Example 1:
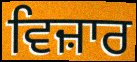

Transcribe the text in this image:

ਵਿਜ਼ਾਰ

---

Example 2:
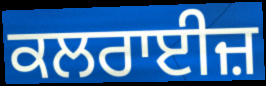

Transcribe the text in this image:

ਕਲਰਾਈਜ਼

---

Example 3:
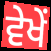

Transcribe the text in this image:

ਵੇਖੇਂ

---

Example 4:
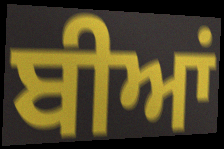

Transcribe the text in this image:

ਬੀਆਂ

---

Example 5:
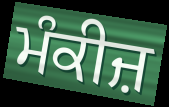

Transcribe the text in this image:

ਮੰਕੀਜ਼